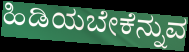
ಹಿಡಿಯಬೇಕೆನ್ನುವ